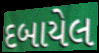
દબાયેલ